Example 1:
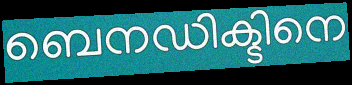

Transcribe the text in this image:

ബെനഡിക്ടിനെ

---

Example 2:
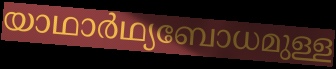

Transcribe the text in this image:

യാഥാർഥ്യബോധമുള്ള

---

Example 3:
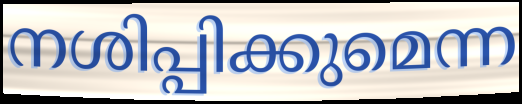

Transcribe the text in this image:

നശിപ്പിക്കുമെന്ന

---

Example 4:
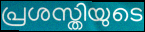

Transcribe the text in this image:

പ്രശസ്തിയുടെ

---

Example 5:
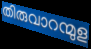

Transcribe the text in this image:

തിരുവാറന്മുള